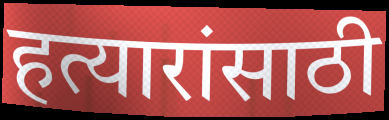
हत्यारांसाठी